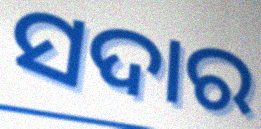
ସଦାର